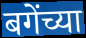
बगेंच्या